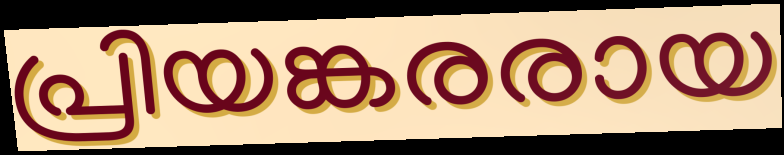
പ്രിയങ്കരരായ